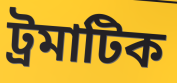
ট্রমাটিক